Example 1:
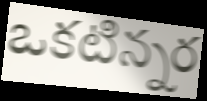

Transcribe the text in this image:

ఒకటిన్నర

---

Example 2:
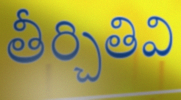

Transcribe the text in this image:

తీర్చితివి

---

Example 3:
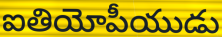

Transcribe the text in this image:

ఐతియోపీయుడు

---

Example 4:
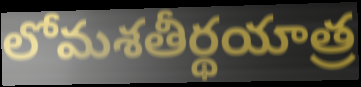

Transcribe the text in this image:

లోమశతీర్థయాత్ర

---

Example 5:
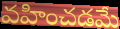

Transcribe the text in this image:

వహించడమే